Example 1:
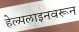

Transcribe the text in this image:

हेल्पलाइनवरून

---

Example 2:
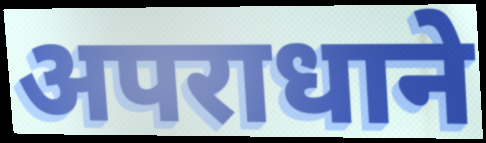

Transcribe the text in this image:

अपराधाने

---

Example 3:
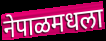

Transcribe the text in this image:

नेपाळमधला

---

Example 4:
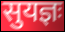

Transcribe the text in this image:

सुयज्ञः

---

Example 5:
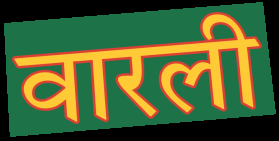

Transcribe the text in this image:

वारली